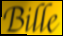
Bille